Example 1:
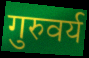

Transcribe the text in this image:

गुरुवर्य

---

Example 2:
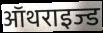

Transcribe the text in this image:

ऑथराइज्ड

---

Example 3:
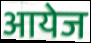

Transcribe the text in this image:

आयेज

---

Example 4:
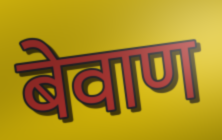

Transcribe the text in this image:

बेवाण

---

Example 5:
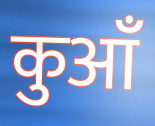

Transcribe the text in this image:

कुआँ